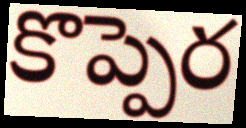
కొప్పెర